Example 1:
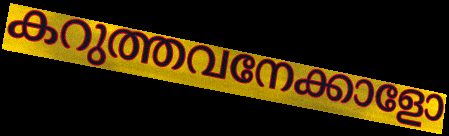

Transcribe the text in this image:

കറുത്തവനേക്കാളോ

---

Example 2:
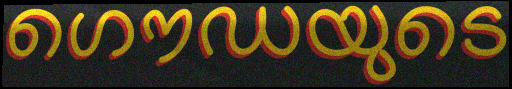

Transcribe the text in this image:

ഗൌഡയുടെ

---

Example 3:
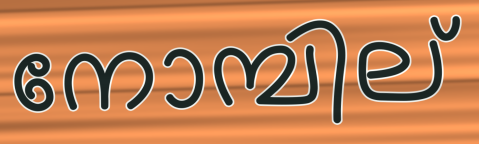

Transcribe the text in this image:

നോമ്പില്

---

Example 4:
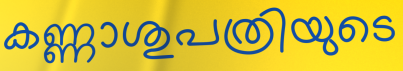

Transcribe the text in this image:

കണ്ണാശുപത്രിയുടെ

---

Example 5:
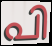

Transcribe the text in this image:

പി